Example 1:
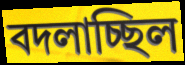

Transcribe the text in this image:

বদলাচ্ছিল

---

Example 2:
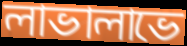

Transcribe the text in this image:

লাভালাভে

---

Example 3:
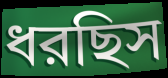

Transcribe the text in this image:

ধরছিস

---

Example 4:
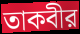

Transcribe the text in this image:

তাকবীর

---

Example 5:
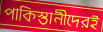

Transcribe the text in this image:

পাকিস্তানীদেরই